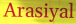
Arasiyal